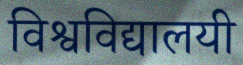
विश्वविद्यालयी